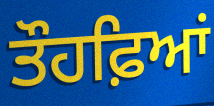
ਤੌਹਫ਼ਿਆਂ